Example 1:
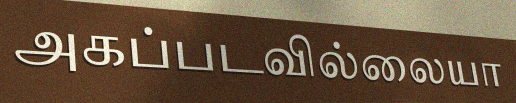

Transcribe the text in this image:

அகப்படவில்லையா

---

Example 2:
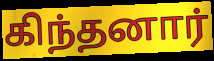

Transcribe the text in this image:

கிந்தனார்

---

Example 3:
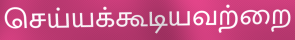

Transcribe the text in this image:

செய்யக்கூடியவற்றை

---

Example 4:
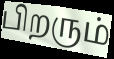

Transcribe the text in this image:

பிறரும்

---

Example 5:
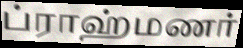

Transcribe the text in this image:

ப்ராஹ்மணர்